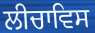
ਲੀਚਾਵਿਸ